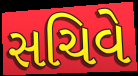
સચિવે